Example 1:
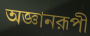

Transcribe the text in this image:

অজ্ঞানরূপী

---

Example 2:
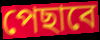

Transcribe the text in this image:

পেছাবে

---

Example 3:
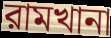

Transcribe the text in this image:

রামখানা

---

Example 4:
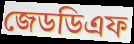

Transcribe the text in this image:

জেডডিএফ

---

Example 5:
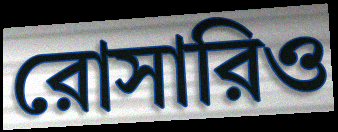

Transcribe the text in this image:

রোসারিও